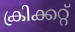
ക്രിക്കറ്റ്